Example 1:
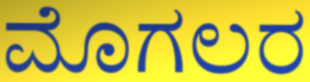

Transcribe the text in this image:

ಮೊಗಲರ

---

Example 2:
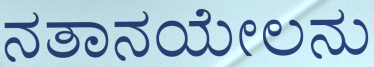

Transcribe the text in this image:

ನತಾನಯೇಲನು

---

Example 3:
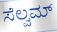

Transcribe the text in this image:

ಸೆಲ್ವಮ್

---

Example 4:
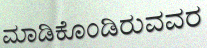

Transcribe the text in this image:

ಮಾಡಿಕೊಂಡಿರುವವರ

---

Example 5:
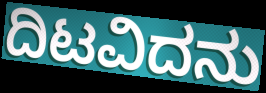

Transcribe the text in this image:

ದಿಟವಿದನು